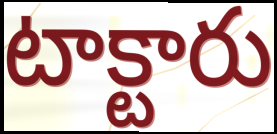
టాక్టారు